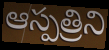
ఆస్పత్రిని